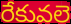
రేకువలె